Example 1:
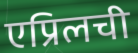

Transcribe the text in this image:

एप्रिलची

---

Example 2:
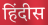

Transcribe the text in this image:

हिंदीस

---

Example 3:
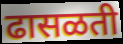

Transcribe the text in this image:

ढासळती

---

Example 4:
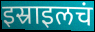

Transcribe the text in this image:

इस्राइलचं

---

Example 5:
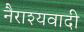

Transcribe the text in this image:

नैराश्यवादी